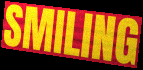
SMILING